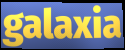
galaxia